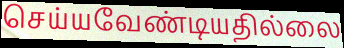
செய்யவேண்டியதில்லை